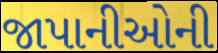
જાપાનીઓની